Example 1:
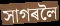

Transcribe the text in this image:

সাগৰলৈ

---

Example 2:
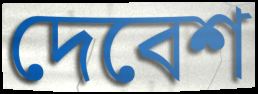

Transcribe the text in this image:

দেবেশ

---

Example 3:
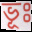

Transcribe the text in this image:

ভূঃ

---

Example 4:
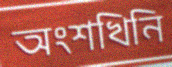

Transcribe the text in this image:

অংশখিনি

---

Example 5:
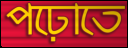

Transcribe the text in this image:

পঢ়োতে